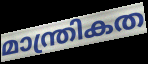
മാന്ത്രികത